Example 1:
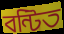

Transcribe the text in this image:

বন্টিত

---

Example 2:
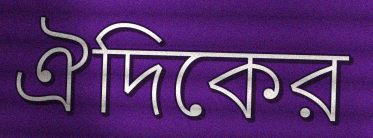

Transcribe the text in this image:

ঐদিকের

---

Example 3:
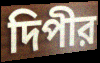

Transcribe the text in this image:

দিপীর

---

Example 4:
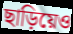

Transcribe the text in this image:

ছাড়িয়েও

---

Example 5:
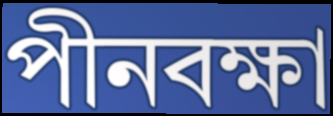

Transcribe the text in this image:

পীনবক্ষা